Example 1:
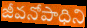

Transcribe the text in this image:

జీవనోపాధిని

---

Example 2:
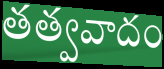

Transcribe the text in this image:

తత్వవాదం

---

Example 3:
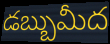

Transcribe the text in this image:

డబ్బుమీద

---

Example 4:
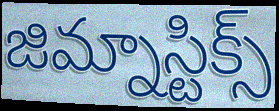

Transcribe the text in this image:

జిమ్నాస్టిక్స్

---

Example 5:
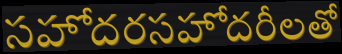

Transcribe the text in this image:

సహోదరసహోదరీలతో